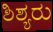
ಶಿಶ್ಯರು